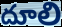
దూలి